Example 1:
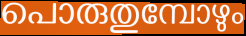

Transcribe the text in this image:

പൊരുതുമ്പോഴും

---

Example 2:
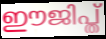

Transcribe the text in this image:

ഈജിപ്ത്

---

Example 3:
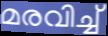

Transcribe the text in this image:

മരവിച്ച്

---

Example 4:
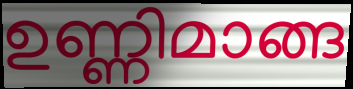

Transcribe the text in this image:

ഉണ്ണിമാങ്ങ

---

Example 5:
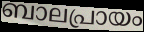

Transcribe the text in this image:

ബാലപ്രായം